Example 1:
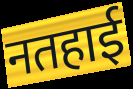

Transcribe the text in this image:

नतहाई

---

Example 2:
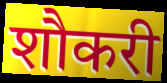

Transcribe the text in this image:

शौकरी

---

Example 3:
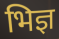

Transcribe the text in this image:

भिज्ञ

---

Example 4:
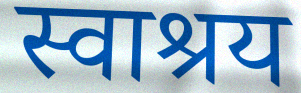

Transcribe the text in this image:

स्वाश्रय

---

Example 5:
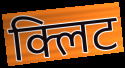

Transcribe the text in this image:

क्लिट